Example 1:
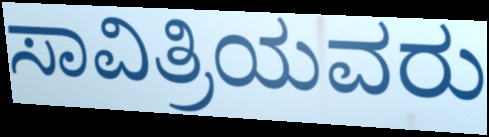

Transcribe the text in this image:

ಸಾವಿತ್ರಿಯವರು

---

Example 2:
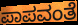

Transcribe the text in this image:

ಪಾಪವಂತೆ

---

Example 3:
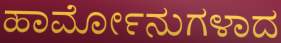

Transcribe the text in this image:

ಹಾರ್ಮೋನುಗಳಾದ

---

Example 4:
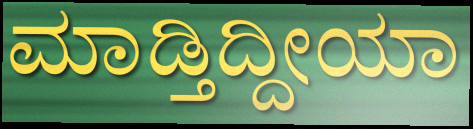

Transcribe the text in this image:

ಮಾಡ್ತಿದ್ದೀಯಾ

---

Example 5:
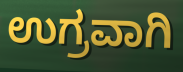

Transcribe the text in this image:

ಉಗ್ರವಾಗಿ